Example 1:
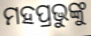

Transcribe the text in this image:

ମହପ୍ରଭୁଙ୍କୁ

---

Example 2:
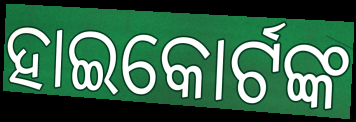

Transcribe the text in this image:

ହାଇକୋର୍ଟଙ୍କ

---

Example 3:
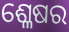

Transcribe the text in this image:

ଶ୍ଳେଷର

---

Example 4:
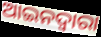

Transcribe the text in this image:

ଆଇନଦ୍ଵାରା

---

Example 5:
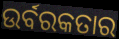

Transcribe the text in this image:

ଉର୍ବରକତାର